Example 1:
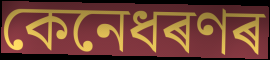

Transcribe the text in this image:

কেনেধৰণৰ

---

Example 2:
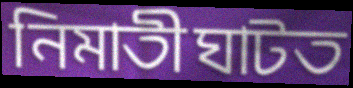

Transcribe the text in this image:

নিমাতীঘাটত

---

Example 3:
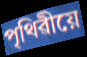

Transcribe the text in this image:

পৃথিৱীয়ে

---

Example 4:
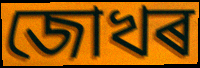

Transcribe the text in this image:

জোখৰ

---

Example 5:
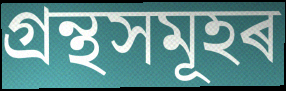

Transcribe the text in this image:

গ্ৰন্থসমূহৰ